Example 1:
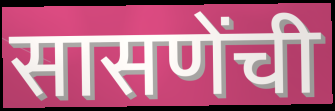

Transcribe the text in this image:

सासणेंची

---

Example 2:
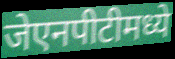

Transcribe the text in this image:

जेएनपीटीमध्ये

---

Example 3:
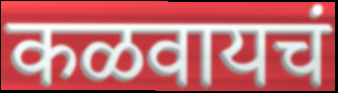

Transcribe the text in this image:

कळवायचं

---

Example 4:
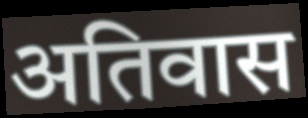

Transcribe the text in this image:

अतिवास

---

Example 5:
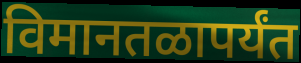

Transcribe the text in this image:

विमानतळापर्यंत